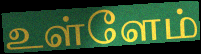
உள்ளேம்